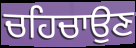
ਚਹਿਚਾਉਣ